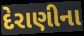
દેરાણીના